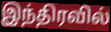
இந்திரவில்